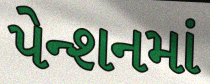
પેન્શનમાં